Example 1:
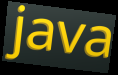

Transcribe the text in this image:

java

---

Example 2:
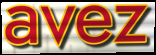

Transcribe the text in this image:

avez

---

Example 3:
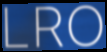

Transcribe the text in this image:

LRO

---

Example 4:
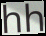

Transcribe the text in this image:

hh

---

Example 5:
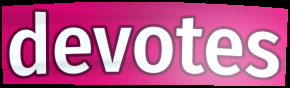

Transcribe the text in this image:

devotes